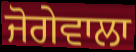
ਜੋਗੇਵਾਲਾ